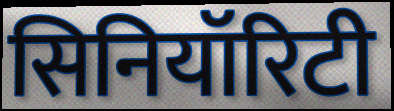
सिनियॉरिटी